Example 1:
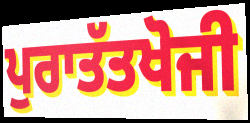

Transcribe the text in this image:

ਪੁਰਾਤੱਤਖੋਜੀ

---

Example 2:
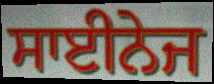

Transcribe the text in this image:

ਸਾਈਨੇਜ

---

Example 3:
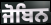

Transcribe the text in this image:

ਜੋਬਿਨ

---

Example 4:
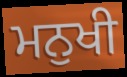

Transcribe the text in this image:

ਮਨੁਖੀ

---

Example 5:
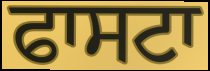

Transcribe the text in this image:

ਫਾਸਟਾ